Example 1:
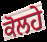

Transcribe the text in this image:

ਕੋਲਹੇ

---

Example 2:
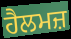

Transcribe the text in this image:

ਹੈਲਮਜ਼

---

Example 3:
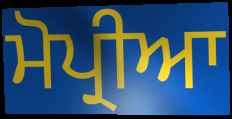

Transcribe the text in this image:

ਮੋਪ੍ਰੀਆ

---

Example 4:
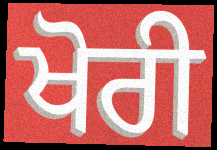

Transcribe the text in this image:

ਖੋਰੀ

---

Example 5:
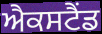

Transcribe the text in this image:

ਐਕਸਟੈਂਡ